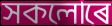
সকলোৰে